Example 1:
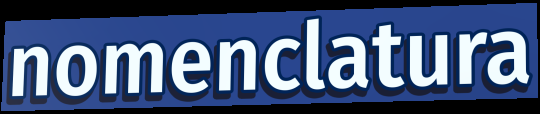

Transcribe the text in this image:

nomenclatura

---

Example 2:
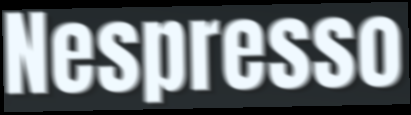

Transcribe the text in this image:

Nespresso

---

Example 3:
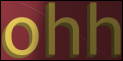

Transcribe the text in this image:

ohh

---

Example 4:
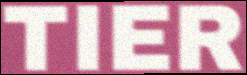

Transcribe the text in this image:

TIER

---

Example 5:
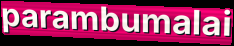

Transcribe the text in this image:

parambumalai